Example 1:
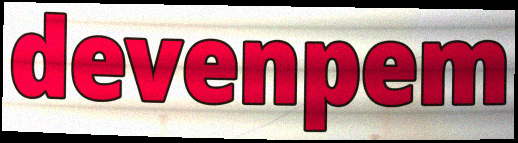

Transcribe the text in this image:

devenpem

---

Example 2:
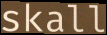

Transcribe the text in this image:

skall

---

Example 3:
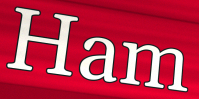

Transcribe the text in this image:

Ham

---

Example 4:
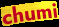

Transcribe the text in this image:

chumi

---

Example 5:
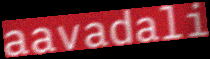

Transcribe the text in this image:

aavadali